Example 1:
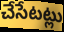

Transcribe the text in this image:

చేసేటట్లు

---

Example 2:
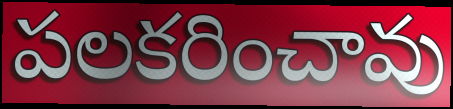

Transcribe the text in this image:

పలకరించావు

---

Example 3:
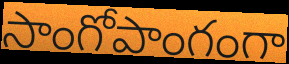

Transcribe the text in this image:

సాంగోపాంగంగా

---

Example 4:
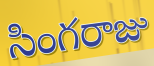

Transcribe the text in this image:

సింగరాజు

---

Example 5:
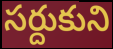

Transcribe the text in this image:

సర్దుకుని